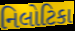
નિલોટિકા